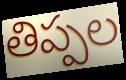
తిప్పల